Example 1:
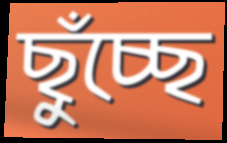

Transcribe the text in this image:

ছুঁচ্ছে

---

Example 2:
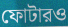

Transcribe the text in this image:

ফোটারও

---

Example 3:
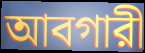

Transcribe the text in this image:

আবগারী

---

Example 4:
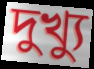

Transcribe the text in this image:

দুখ্যু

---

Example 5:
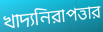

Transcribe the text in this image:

খাদ্যনিরাপত্তার